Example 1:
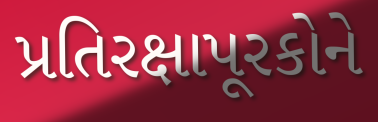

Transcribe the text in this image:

પ્રતિરક્ષાપૂરકોને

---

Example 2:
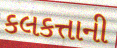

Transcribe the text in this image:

કલકત્તાની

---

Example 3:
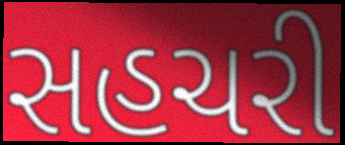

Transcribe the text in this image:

સહચરી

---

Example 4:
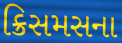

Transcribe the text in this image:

ક્રિસમસના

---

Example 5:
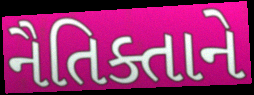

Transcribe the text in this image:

નૈતિક્તાને